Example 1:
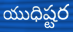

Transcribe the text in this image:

యుధిష్టర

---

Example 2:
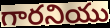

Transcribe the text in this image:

గారనియు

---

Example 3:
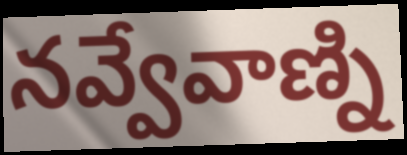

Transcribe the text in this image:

నవ్వేవాణ్ని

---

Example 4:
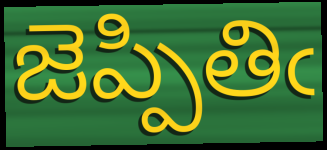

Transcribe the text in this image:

జెప్పితిఁ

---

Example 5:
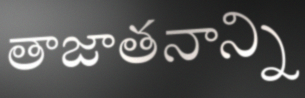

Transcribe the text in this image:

తాజాతనాన్ని